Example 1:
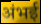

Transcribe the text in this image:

अंभई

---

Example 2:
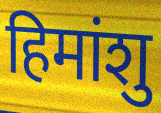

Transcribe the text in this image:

हिमांशु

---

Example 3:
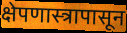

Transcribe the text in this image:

क्षेपणास्त्रापासून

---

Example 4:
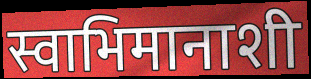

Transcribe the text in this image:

स्वाभिमानाशी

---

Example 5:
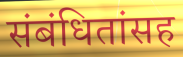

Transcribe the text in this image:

संबंधितांसह